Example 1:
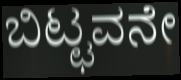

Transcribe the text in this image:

ಬಿಟ್ಟವನೇ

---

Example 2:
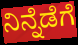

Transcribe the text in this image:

ನಿನ್ನೆಡೆಗೆ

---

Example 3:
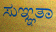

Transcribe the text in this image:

ಸುಞ್ಞತಾ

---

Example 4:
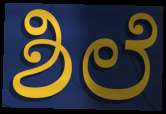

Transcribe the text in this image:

ಶಿಲೆ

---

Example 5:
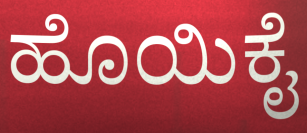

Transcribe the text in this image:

ಹೊಯಿಕೈ